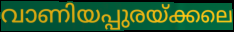
വാണിയപ്പുരയ്ക്കലെ